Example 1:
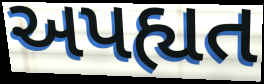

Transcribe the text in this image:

અપહ્યત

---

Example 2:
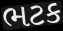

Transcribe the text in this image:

ભટક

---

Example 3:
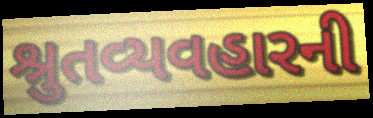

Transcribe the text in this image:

શ્રુતવ્યવહારની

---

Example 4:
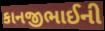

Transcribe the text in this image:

કાનજીભાઈની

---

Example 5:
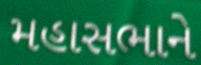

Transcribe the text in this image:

મહાસભાને